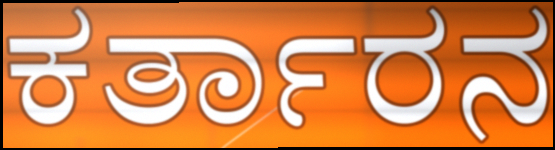
ಕರ್ತಾರನ